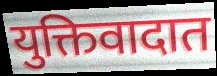
युक्तिवादात